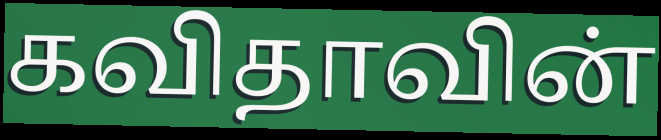
கவிதாவின்